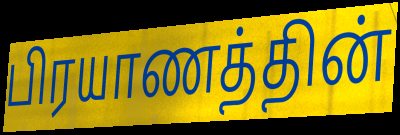
பிரயாணத்தின்